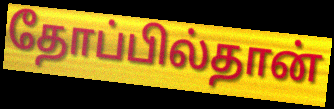
தோப்பில்தான்